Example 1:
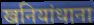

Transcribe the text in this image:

खनियांधाना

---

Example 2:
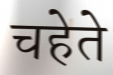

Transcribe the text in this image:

चहेते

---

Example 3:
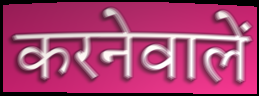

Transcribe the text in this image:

करनेवालें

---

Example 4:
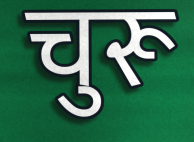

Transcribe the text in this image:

चुरू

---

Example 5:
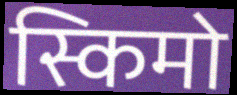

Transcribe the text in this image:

स्किमो